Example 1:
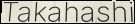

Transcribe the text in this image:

Takahashi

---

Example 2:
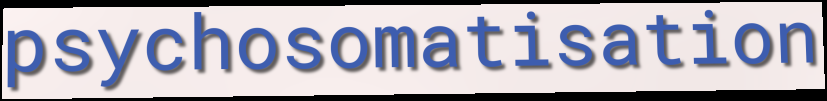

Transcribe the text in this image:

psychosomatisation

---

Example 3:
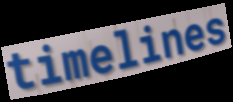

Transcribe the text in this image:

timelines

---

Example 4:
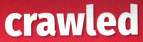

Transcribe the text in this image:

crawled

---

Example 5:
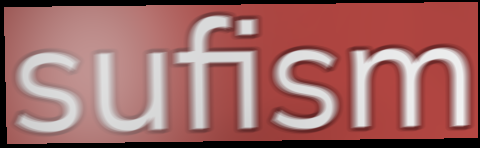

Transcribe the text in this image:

sufism